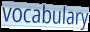
vocabulary